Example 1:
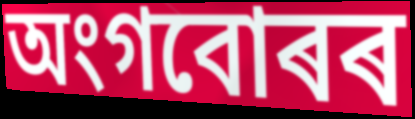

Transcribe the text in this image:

অংগবোৰৰ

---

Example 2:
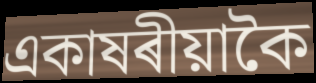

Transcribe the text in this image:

একাষৰীয়াকৈ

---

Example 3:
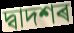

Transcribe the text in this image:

দ্বাদশৰ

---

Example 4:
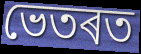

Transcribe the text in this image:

ভেতৰত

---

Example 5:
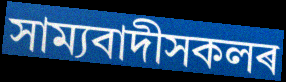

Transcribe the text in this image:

সাম্যবাদীসকলৰ